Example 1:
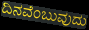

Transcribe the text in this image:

ದಿನವೆಂಬುವುದು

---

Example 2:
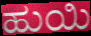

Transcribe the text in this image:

ಹುಯಿ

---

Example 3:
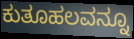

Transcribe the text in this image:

ಕುತೂಹಲವನ್ನೂ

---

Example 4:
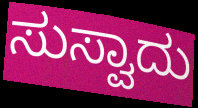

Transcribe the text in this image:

ಸುಸ್ವಾದು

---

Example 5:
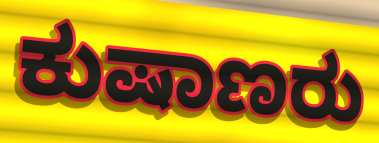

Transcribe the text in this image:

ಕುಷಾಣರು